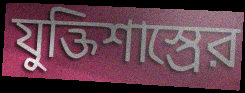
যুক্তিশাস্ত্রের